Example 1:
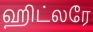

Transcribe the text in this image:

ஹிட்லரே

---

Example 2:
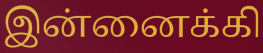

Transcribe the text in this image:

இன்னைக்கி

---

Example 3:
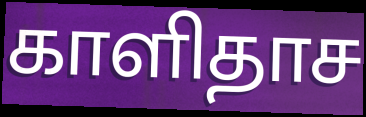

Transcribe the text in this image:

காளிதாச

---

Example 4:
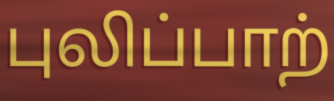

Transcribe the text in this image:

புலிப்பாற்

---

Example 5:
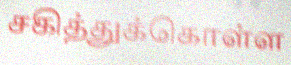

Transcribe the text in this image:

சகித்துக்கொள்ள